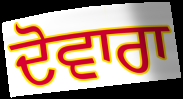
ਦੋਵਾਰਾ